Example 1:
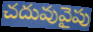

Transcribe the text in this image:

చదువువైపు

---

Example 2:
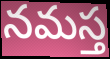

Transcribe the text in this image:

నమస్త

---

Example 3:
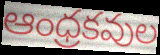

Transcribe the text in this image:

ఆంధ్రకవుల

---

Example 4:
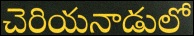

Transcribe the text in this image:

చెరియనాడులో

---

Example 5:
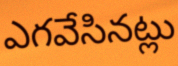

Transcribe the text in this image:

ఎగవేసినట్లు